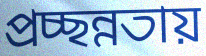
প্রচ্ছন্নতায়